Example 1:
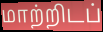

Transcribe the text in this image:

மாற்றிடப்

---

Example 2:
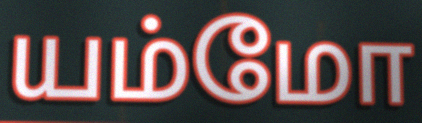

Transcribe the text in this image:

யம்மோ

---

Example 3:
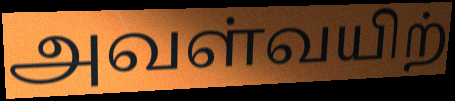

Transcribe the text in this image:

அவள்வயிற்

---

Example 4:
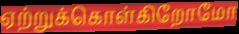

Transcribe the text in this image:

ஏற்றுக்கொள்கிறோமோ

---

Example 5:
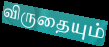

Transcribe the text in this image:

விருதையும்